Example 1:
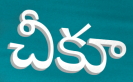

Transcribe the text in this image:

చీకూ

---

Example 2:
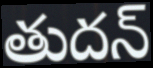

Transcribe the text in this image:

తుదన్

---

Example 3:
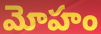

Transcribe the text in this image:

మోహం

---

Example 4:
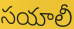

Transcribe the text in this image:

సయాలీ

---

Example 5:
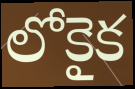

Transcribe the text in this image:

లోకైక